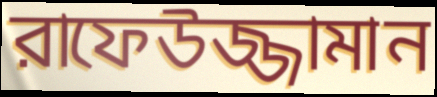
রাফেউজ্জামান